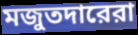
মজুতদারেরা